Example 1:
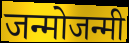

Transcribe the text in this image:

जन्मोजन्मी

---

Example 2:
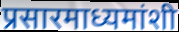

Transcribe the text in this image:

प्रसारमाध्यमांशी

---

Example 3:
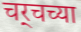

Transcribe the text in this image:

चर्चच्या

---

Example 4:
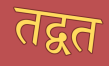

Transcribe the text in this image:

तद्वत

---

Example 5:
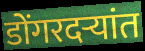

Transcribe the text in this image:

डोंगरदऱ्यांत